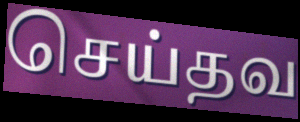
செய்தவ